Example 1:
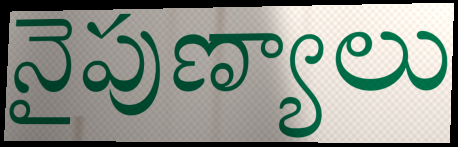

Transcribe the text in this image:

నైపుణ్యాలు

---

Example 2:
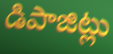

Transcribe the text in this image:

డిపాజిట్లు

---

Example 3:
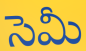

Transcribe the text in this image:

సెమీ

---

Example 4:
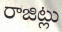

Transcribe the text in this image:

రాజిట్లు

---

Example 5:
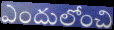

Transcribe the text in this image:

ఎందులోంచి